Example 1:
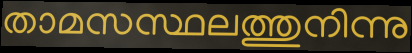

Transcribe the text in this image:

താമസസ്ഥലത്തുനിന്നു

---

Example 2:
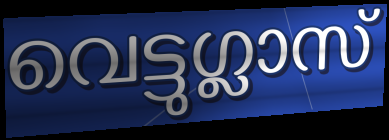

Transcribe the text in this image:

വെട്ടുഗ്ലാസ്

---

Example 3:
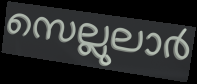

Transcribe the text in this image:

സെല്ലുലാർ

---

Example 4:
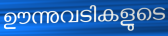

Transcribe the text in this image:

ഊന്നുവടികളുടെ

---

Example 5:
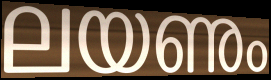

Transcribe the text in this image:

ലയണും